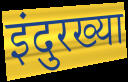
इंदुरख्या